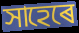
সাহেৰে